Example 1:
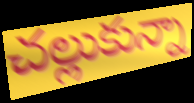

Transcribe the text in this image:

చల్లుకున్నా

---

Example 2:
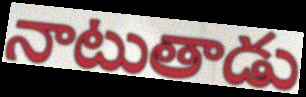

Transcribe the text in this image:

నాటుతాడు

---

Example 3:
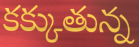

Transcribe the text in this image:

కక్కుతున్న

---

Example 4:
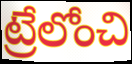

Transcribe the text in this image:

ట్రేలోంచి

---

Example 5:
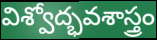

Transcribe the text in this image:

విశ్వోద్భవశాస్త్రం